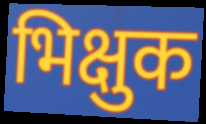
भिक्षुक